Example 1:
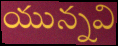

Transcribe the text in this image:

యున్నవి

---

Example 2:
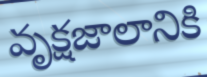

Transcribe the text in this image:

వృక్షజాలానికి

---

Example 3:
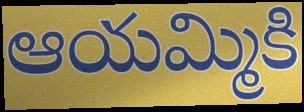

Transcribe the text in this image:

ఆయమ్మికి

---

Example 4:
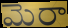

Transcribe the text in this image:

మెరా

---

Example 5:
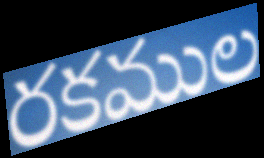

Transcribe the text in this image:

రకముల